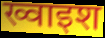
ख्वाइश